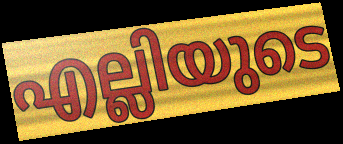
എല്ലിയുടെ